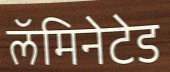
लॅमिनेटेड